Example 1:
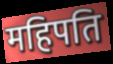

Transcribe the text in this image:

महिपति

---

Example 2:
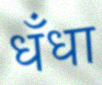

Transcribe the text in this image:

धँधा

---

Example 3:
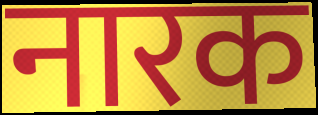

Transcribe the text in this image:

नारक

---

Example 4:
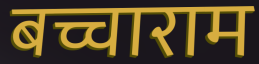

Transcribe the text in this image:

बच्चाराम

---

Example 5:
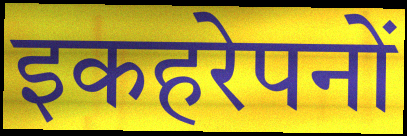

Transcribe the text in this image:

इकहरेपनों